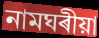
নামঘৰীয়া